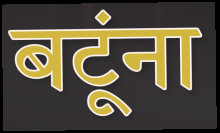
बटूंना